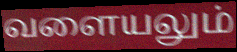
வளையலும்